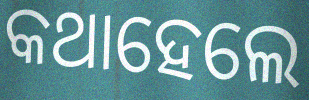
କଥାହେଲେ